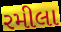
રમીલા